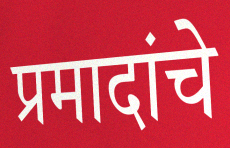
प्रमादांचे